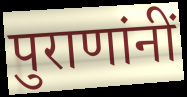
पुराणांनीं